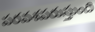
పరవశపరుస్తుంది